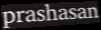
prashasan